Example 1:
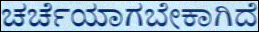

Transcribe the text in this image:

ಚರ್ಚೆಯಾಗಬೇಕಾಗಿದೆ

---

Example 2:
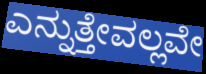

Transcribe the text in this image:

ಎನ್ನುತ್ತೇವಲ್ಲವೇ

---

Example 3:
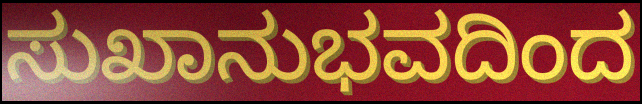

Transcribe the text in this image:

ಸುಖಾನುಭವದಿಂದ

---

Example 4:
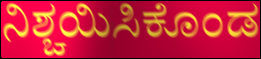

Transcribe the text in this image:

ನಿಶ್ಚಯಿಸಿಕೊಂಡ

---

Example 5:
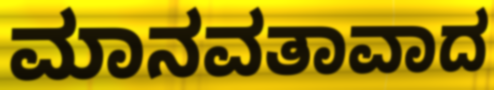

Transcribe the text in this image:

ಮಾನವತಾವಾದ